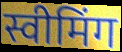
स्वीमिंग